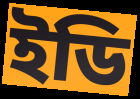
ইডি